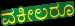
ವಕೀಲರೂ